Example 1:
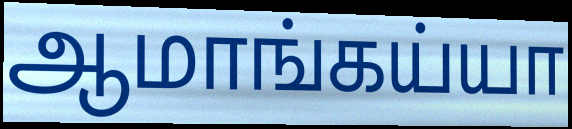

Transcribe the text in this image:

ஆமாங்கய்யா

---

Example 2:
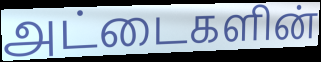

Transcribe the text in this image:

அட்டைகளின்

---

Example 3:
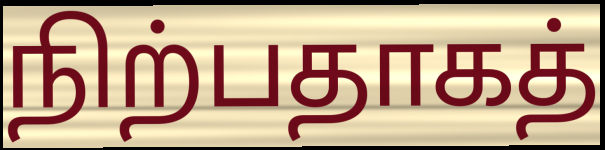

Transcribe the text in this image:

நிற்பதாகத்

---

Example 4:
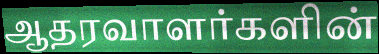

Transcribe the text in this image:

ஆதரவாளர்களின்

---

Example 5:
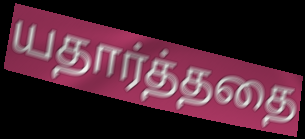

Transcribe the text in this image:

யதார்த்ததை